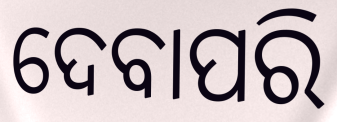
ଦେବାପରି